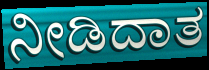
ನೀಡಿದಾತ